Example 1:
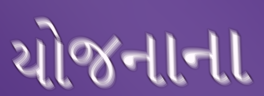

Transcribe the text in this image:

યોજનાના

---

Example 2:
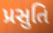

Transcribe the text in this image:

પ્રસુતિ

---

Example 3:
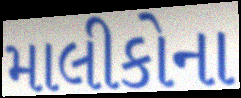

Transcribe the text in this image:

માલીકોના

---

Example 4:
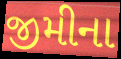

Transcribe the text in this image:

જીમીના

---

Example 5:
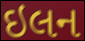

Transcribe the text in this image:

ઇલન